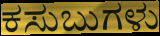
ಕಸುಬುಗಳು